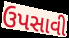
ઉપસાવી